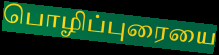
பொழிப்புரையை